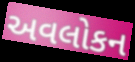
અવલોકન